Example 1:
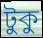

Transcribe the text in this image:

টুকু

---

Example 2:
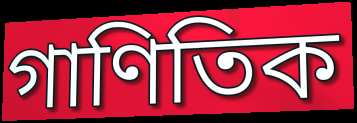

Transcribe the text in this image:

গাণিতিক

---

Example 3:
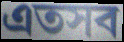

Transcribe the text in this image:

এতসব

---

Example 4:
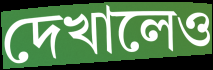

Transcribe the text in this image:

দেখালেও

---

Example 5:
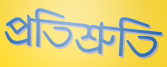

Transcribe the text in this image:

প্রতিশ্রুতি